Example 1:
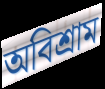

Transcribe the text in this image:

অবিশ্রাম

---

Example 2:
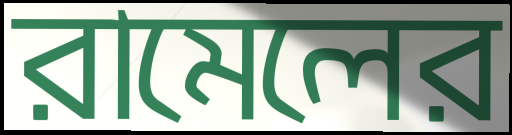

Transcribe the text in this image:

রামেলের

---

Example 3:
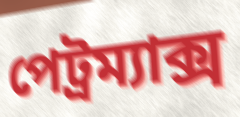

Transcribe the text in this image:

পেট্রম্যাক্স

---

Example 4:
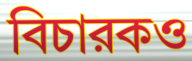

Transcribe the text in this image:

বিচারকও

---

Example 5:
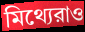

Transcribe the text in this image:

মিথ্যেরাও